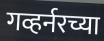
गव्हर्नरच्या